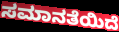
ಸಮಾನತೆಯಿದೆ